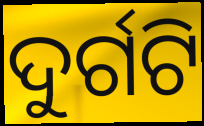
ଦୁର୍ଗଟି